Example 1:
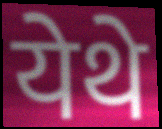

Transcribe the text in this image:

येथे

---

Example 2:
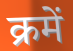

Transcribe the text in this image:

क्रमें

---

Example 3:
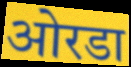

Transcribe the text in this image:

ओरडा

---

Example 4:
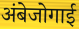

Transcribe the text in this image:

अंबेजोगाई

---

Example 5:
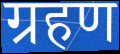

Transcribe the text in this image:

ग्रहण